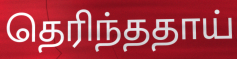
தெரிந்ததாய்